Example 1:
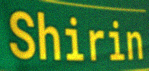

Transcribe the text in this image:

Shirin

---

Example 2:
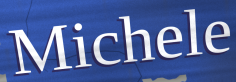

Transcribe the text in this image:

Michele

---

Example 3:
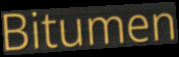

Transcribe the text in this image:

Bitumen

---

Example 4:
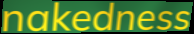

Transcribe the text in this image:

nakedness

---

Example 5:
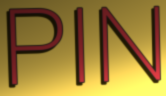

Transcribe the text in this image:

PIN